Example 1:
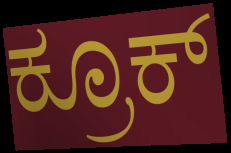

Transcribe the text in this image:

ಕ್ರೂಕ್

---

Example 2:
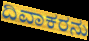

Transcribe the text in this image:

ದಿವಾಕರನು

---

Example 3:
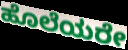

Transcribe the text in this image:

ಹೊಲೆಯರೇ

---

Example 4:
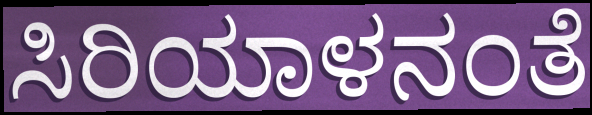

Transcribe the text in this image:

ಸಿರಿಯಾಳನಂತೆ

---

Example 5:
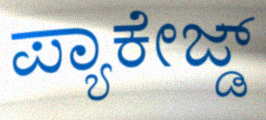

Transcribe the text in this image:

ಪ್ಯಾಕೇಜ್ಡ್